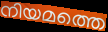
നിയമത്തെ